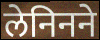
लेनिनने